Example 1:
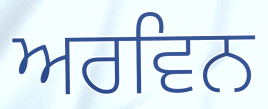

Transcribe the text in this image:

ਅਰਵਿਨ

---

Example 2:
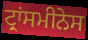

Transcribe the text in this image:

ਟ੍ਰਾਂਸਮੀਨੇਸ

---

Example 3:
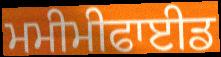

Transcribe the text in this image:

ਮਮੀਮੀਫਾਈਡ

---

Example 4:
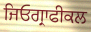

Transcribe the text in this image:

ਜਿਓਗ੍ਰਾਫੀਕਲ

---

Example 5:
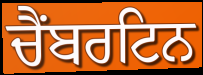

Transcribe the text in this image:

ਚੈਂਬਰਟਿਨ